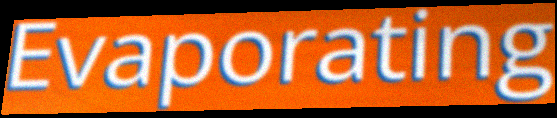
Evaporating